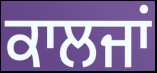
ਕਾਲਜਾਂ